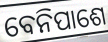
ବେନିପାଶେ